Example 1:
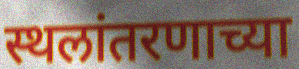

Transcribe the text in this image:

स्थलांतरणाच्या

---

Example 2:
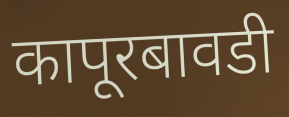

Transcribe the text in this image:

कापूरबावडी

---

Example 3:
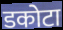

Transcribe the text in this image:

डकोटा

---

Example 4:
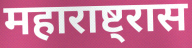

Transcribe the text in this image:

महाराष्ट्रास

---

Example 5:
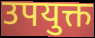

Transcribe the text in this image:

उपयुक्त